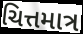
ચિત્તમાત્ર